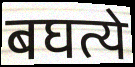
बघत्ये